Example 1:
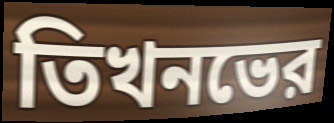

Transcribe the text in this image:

তিখনভের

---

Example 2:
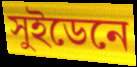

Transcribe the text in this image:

সুইডেনে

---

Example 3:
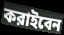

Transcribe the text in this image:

করাইবেন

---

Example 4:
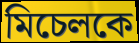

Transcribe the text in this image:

মিচেলকে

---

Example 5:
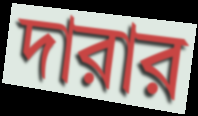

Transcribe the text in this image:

দারার